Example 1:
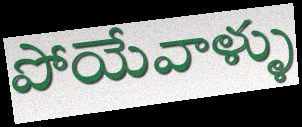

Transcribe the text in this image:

పోయేవాళ్ళు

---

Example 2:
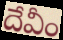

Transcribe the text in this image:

దేవీం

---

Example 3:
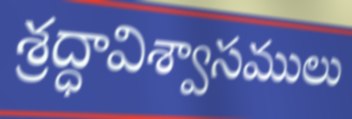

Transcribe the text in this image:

శ్రద్ధావిశ్వాసములు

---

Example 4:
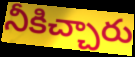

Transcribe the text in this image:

నీకిచ్చారు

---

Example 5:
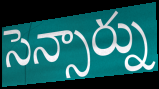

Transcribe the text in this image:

సెన్సార్ను